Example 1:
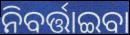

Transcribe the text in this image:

ନିବର୍ତ୍ତାଇବା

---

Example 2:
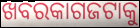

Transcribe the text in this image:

ଖବରକାଗଜଟାକୁ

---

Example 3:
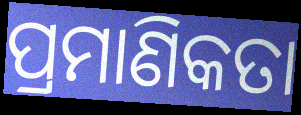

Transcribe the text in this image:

ପ୍ରମାଣିକତା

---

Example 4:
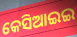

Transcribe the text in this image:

କେସିଆଇଇ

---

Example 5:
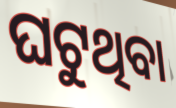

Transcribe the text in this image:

ଘଟୁଥିବା